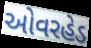
ઓવરહેડ